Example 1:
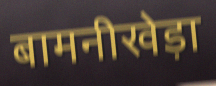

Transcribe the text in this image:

बामनीखेड़ा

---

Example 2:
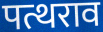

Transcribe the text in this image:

पत्थराव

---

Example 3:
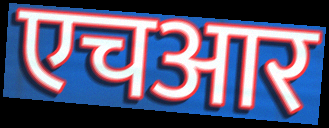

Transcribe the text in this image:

एचआर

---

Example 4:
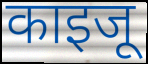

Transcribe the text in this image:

काइजू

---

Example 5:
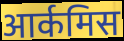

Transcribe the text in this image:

आर्कमिस